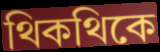
থিকথিকে